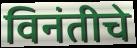
विनंतीचे